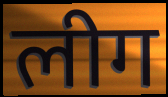
लीग